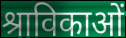
श्राविकाओं